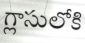
గ్లాసులోకి